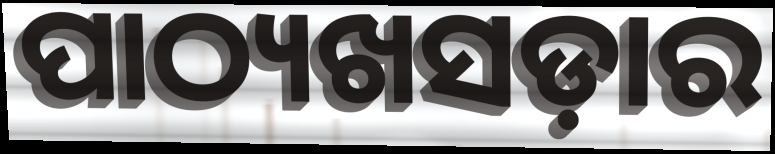
ପାଠ୍ୟଖସଡ଼ାର